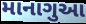
માનાગુઆ